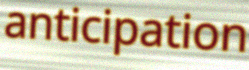
anticipation